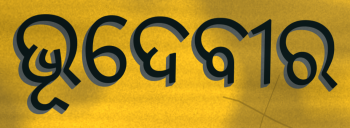
ଭୂଦେବୀର